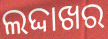
ଲଦ୍ଦାଖର